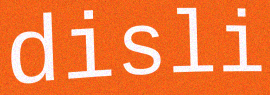
disli